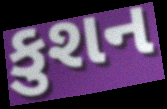
કુશન